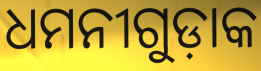
ଧମନୀଗୁଡ଼ାକ